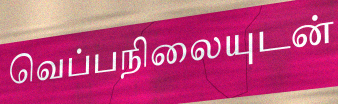
வெப்பநிலையுடன்